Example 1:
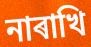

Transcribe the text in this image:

নাৰাখি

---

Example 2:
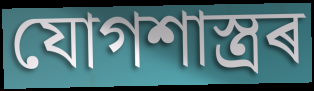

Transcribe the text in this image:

যোগশাস্ত্ৰৰ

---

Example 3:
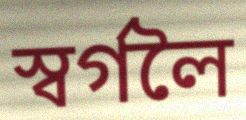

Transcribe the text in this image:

স্বৰ্গলৈ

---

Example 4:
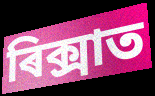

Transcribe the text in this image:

ৰিক্সাত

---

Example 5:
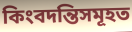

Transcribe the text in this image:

কিংবদন্তিসমূহত